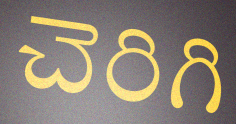
చెరిగి